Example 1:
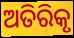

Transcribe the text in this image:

ଅତିରିକୃ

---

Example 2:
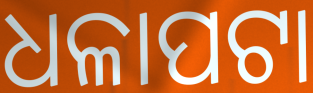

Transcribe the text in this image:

ଧଳାପଟା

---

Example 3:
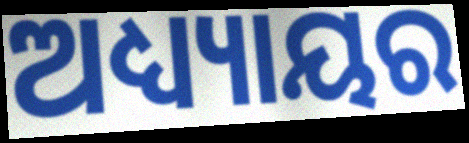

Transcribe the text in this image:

ଅଧ୍ୟ୍ୟାୟର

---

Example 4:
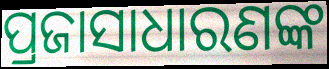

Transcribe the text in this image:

ପ୍ରଜାସାଧାରଣଙ୍କ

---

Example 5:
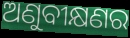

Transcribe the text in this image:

ଅଣୁବୀକ୍ଷଣର